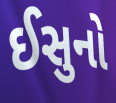
ઈસુનો